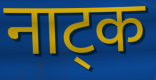
नाट्क